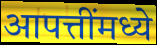
आपत्तींमध्ये